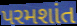
પરમશાંત